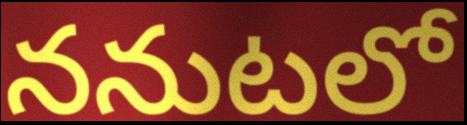
ననుటలో